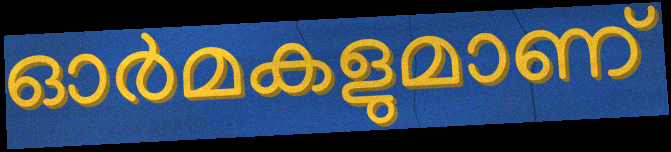
ഓർമകളുമാണ്